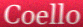
Coello